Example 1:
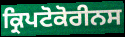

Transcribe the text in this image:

ਕ੍ਰਿਪਟੋਕੋਰੀਨਸ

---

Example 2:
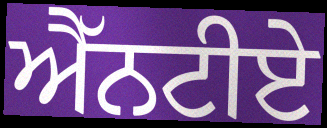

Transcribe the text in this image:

ਐੱਨਟੀਏ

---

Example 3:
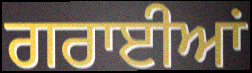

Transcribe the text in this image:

ਗਰਾਈਆਂ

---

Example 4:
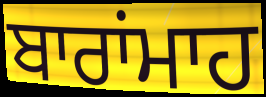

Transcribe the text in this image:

ਬਾਰਾਂਮਾਹ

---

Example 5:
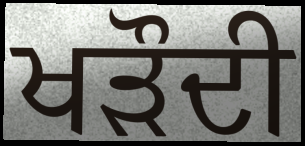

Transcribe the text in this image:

ਖੜੌਦੀ